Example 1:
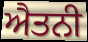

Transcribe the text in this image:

ਐਤਨੀ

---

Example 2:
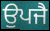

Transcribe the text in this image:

ਉਪਜੈ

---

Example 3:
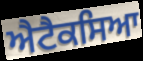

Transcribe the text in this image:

ਐਟੈਕਸਿਆ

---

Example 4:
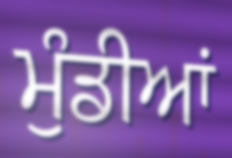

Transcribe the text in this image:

ਮੁੰਡੀਆਂ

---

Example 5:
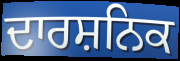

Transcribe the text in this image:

ਦਾਰਸ਼ਨਿਕ